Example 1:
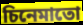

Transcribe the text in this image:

চিনেমাতো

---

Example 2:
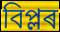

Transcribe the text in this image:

বিপ্লৰ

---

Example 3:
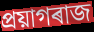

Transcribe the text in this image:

প্ৰয়াগৰাজ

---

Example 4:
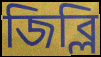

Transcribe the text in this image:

জিব্লি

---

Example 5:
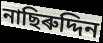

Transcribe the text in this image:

নাছিৰুদ্দিন